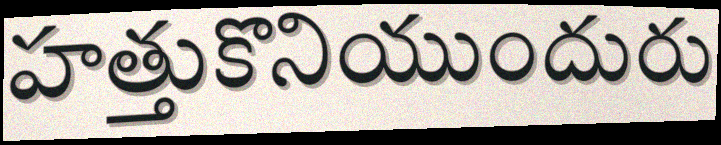
హత్తుకొనియుందురు